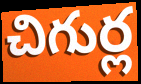
చిగుర్ల